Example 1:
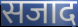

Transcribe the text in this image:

सजाद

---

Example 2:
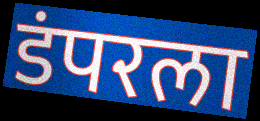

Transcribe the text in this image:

डंपरला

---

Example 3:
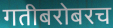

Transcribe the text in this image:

गतीबरोबरच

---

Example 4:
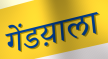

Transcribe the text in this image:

गेंडय़ाला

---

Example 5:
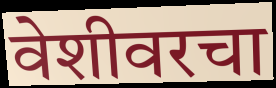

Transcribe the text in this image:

वेशीवरचा